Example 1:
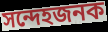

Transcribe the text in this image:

সন্দেহজনক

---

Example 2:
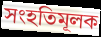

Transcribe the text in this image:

সংহতিমূলক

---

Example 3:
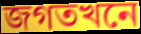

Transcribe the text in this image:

জগতখনে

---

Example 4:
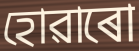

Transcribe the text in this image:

হোৱাৰো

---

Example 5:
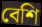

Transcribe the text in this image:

বেশি